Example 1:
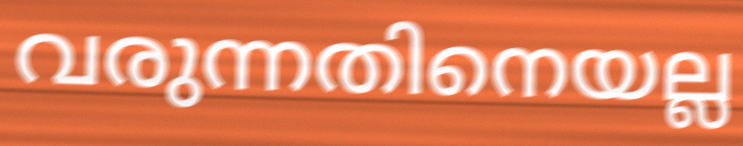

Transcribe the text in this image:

വരുന്നതിനെയല്ല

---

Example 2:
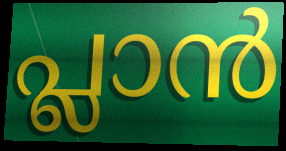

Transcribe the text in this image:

പ്ലാൻ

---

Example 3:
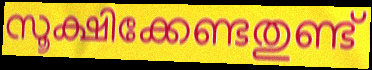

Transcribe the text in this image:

സൂക്ഷിക്കേണ്ടതുണ്ട്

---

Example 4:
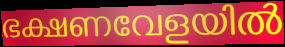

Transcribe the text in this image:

ഭക്ഷണവേളയിൽ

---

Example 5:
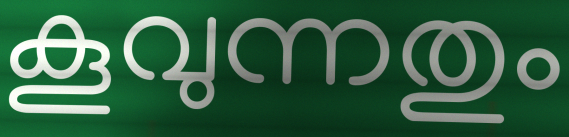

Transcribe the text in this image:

കൂവുന്നതും